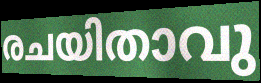
രചയിതാവു